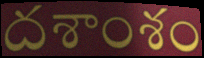
దశాంశం